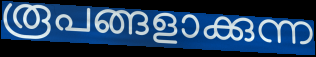
രൂപങ്ങളാക്കുന്ന